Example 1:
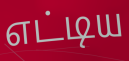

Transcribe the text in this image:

எட்டிய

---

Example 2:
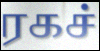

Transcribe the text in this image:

ரகச்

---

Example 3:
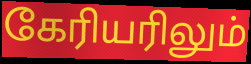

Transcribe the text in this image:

கேரியரிலும்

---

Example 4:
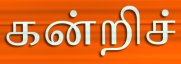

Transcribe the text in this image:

கன்றிச்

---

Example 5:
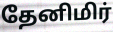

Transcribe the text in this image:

தேனிமிர்